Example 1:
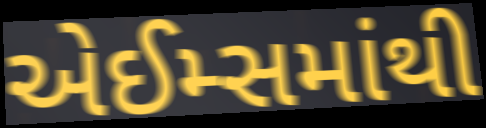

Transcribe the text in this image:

એઈમ્સમાંથી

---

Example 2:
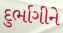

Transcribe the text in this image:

દુર્ભાગીને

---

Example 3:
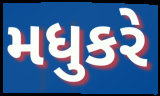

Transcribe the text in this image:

મધુકરે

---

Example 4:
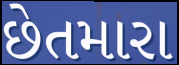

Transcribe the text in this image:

છેતમારા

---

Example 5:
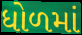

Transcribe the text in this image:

ધોળમાં